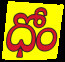
ధోం